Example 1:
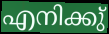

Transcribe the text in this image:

എനിക്കു്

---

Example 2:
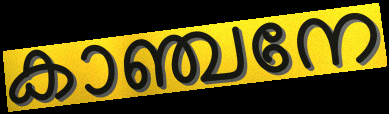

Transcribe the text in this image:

കാഞ്ചനേ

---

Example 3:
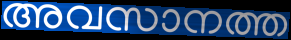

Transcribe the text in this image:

അവസാനത്ത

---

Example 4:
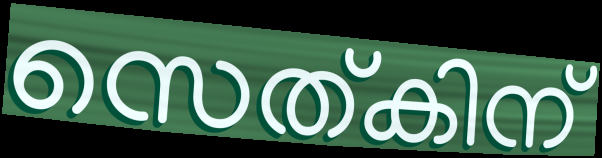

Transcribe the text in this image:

സെത്കിന്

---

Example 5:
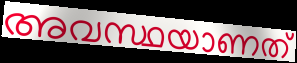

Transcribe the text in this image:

അവസ്ഥയാണത്